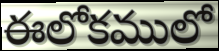
ఈలోకములో